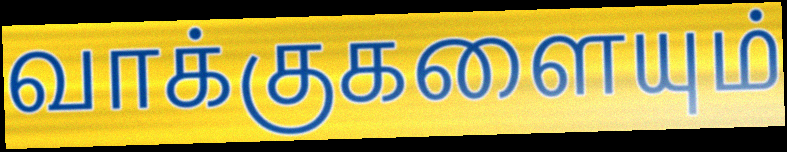
வாக்குகளையும்